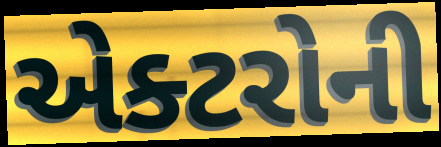
એક્ટરોની